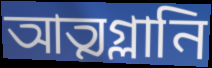
আত্মগ্লানি